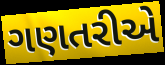
ગણતરીએ